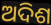
ଅଦିଶ